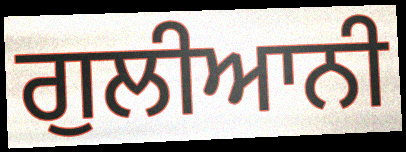
ਗੁਲੀਆਨੀ